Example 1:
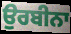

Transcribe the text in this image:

ਉਰਬੀਨਾ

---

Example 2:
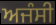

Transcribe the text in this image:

ਅਜੰਸੀ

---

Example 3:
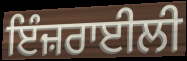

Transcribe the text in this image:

ਇੰਜ਼ਰਾਈਲੀ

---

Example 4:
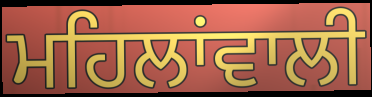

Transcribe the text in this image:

ਮਹਿਲਾਂਵਾਲੀ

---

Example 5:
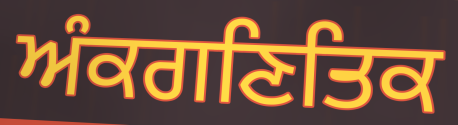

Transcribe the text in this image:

ਅੰਕਗਣਿਤਿਕ